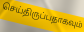
செய்திருப்பதாகவும்